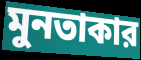
মুনতাকার